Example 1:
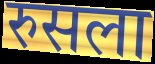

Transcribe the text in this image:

रुसला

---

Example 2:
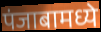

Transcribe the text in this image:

पंजाबामध्ये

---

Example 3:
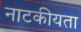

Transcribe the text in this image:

नाटकीयता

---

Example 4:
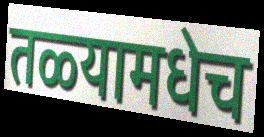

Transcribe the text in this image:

तळ्यामधेच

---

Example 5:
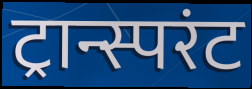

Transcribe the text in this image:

ट्रान्स्परंट